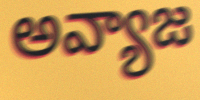
అవ్యాజ